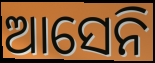
ଆସେନି